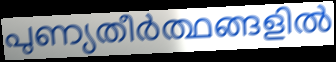
പുണ്യതീർത്ഥങ്ങളിൽ